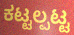
ಕಟ್ಟಲ್ಪಟ್ಟ